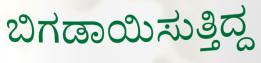
ಬಿಗಡಾಯಿಸುತ್ತಿದ್ದ